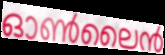
ഓൺലൈൻ